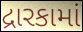
દ્રારકામાં